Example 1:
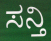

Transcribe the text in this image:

ಸನ್ತಿ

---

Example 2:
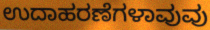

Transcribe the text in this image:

ಉದಾಹರಣೆಗಳಾವುವು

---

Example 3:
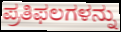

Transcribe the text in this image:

ಪ್ರತಿಫಲಗಳನ್ನು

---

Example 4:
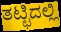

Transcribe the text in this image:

ತಟ್ಟಿದಲ್ಲಿ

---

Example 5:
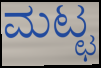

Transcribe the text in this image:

ಮಟ್ಟ